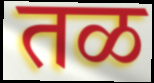
तळ